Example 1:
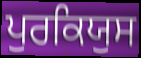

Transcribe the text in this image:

ਪੁਰਕਿਯੁਸ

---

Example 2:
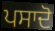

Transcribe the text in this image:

ਪਸਾਦੋ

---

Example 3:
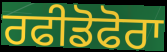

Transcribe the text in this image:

ਰਫੀਡੋਫੋਰਾ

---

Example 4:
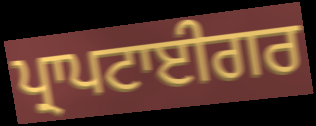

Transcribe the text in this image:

ਪ੍ਰਾਪਟਾਈਗਰ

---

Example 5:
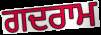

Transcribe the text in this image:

ਗਦਰਾਮ